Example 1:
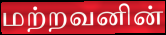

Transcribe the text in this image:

மற்றவனின்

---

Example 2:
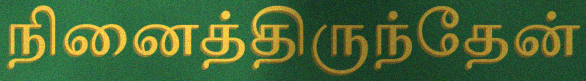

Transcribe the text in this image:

நினைத்திருந்தேன்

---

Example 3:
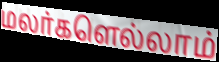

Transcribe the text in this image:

மலர்களெல்லாம்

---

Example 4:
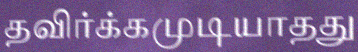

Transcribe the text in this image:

தவிர்க்கமுடியாதது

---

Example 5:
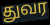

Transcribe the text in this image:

துவர